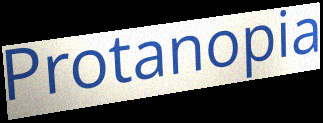
Protanopia